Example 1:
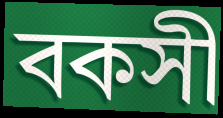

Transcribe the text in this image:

বকসী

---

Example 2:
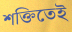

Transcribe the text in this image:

শক্তিতেই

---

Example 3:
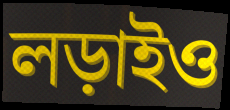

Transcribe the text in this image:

লড়াইও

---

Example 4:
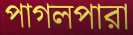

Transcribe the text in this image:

পাগলপারা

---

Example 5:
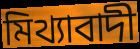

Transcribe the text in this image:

মিথ্যাবাদী